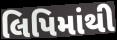
લિપિમાંથી